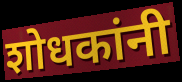
शोधकांनी